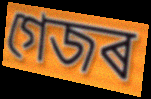
গেজৰ